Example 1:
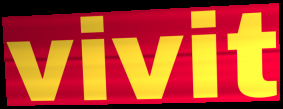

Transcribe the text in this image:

vivit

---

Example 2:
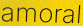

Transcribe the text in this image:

amoral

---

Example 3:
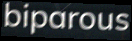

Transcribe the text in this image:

biparous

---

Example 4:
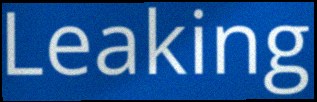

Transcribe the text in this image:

Leaking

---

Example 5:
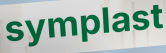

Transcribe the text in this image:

symplast